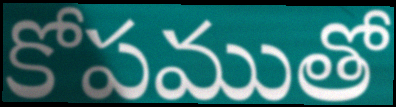
కోపముతో